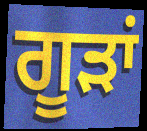
ਗੂੜਾਂ